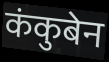
कंकुबेन